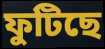
ফুটিছে